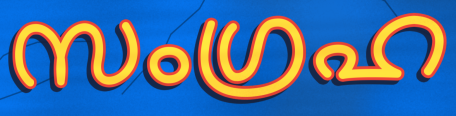
സംഗ്രഹ